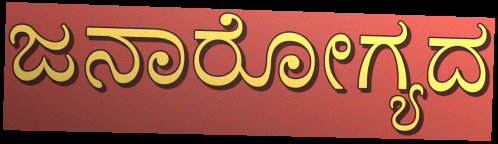
ಜನಾರೋಗ್ಯದ